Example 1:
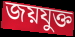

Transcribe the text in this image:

জয়যুক্ত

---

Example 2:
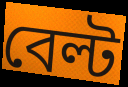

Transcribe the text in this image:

বেল্ট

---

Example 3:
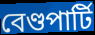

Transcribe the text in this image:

বেণ্ডপাৰ্টি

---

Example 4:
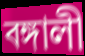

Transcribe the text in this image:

বঙ্গালী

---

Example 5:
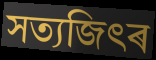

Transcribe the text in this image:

সত্যজিৎৰ